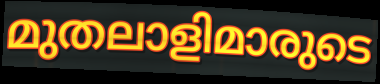
മുതലാളിമാരുടെ